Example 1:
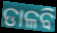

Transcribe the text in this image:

ଡାଳବି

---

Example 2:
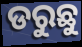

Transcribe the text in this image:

ଡରୁଛୁ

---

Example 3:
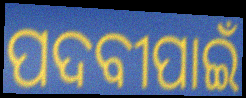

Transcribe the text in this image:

ପଦବୀପାଇଁ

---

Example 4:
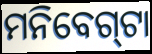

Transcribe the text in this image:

ମନିବେଗ୍‍ଟା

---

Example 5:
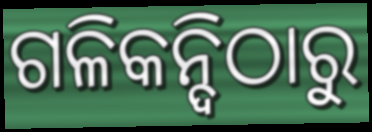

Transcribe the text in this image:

ଗଳିକନ୍ଦିଠାରୁ